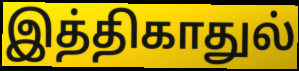
இத்திகாதுல்